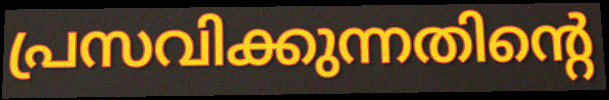
പ്രസവിക്കുന്നതിന്റെ